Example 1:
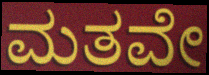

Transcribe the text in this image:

ಮತವೇ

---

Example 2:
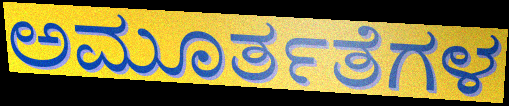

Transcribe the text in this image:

ಅಮೂರ್ತತೆಗಳ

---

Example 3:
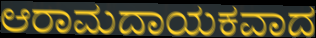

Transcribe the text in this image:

ಆರಾಮದಾಯಕವಾದ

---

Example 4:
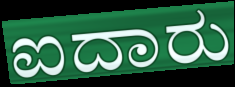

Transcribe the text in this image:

ಐದಾರು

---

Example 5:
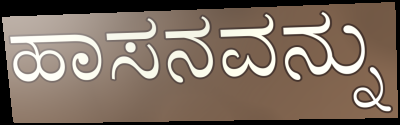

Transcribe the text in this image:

ಹಾಸನವನ್ನು